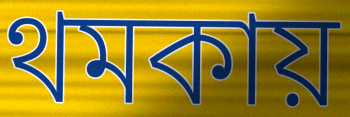
থমকায়